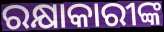
ରକ୍ଷାକାରୀଙ୍କ